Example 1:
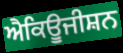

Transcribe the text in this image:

ਐਕਿਊਜੀਸ਼ਨ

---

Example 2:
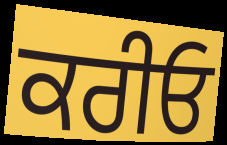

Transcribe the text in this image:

ਕਰੀਓ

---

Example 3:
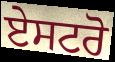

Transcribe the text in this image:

ਏਸਟਰੋ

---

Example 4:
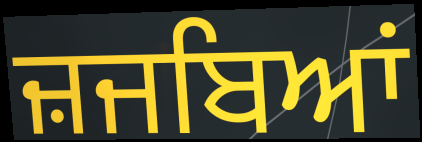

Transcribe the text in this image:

ਜ਼ਜਬਿਆਂ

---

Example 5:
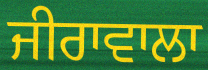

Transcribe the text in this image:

ਜੀਰਾਵਾਲਾ